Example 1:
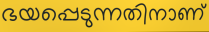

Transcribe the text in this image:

ഭയപ്പെടുന്നതിനാണ്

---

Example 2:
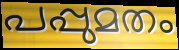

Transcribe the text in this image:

പപ്പുമതം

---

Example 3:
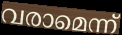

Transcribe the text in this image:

വരാമെന്ന്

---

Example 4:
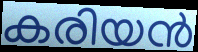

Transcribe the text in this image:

കരിയൻ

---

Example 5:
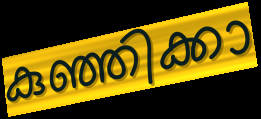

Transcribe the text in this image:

കുഞ്ഞിക്കാ